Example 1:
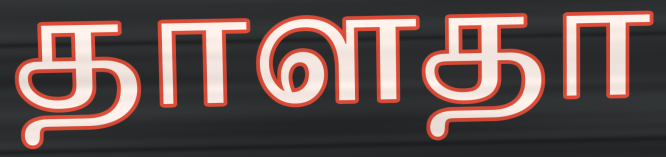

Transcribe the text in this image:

தாளதா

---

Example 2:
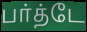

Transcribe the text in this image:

பர்த்டே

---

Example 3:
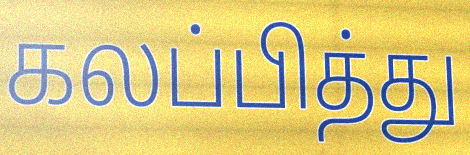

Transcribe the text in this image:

கலப்பித்து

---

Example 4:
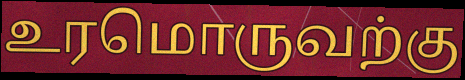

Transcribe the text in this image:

உரமொருவற்கு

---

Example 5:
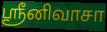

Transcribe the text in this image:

ஸ்ரீனிவாசா